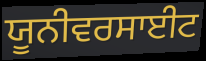
ਯੂਨੀਵਰਸਾਈਟ